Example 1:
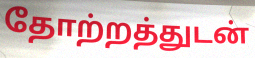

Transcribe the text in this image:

தோற்றத்துடன்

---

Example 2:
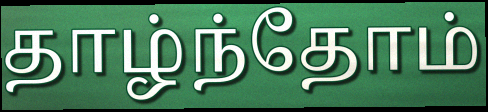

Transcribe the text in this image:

தாழ்ந்தோம்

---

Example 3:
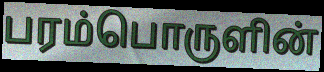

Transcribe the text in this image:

பரம்பொருளின்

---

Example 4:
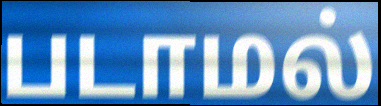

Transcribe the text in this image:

படாமல்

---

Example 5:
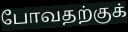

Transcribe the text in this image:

போவதற்குக்